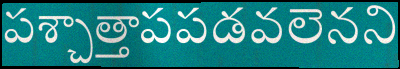
పశ్చాత్తాపపడవలెనని